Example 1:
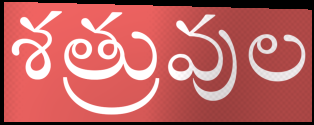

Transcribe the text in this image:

శత్రువుల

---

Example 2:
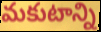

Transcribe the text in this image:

మకుటాన్ని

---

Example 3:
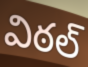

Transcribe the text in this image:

విఠల్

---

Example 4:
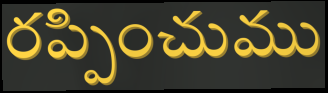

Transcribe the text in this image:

రప్పించుము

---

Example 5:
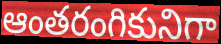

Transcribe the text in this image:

ఆంతరంగికునిగా